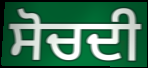
ਸੋਚਦੀ